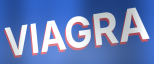
VIAGRA